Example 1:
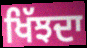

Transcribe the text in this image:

ਖਿੱਝਦਾ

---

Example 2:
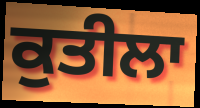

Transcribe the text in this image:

ਕੁਤੀਲਾ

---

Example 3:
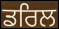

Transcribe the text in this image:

ਡਰਿਲ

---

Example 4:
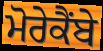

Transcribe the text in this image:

ਮੋਰੇਕੈਂਬੇ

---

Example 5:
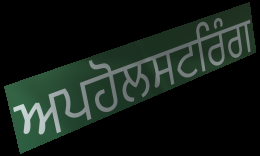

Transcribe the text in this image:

ਅਪਹੋਲਸਟਰਿੰਗ